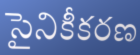
సైనికీకరణ